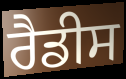
ਰੈਡੀਸ